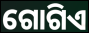
ଗୋଗିଏ